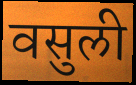
वसुली